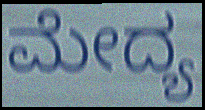
ಮೇದ್ಯ